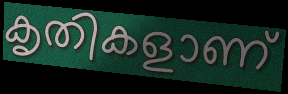
കൃതികളാണ്